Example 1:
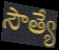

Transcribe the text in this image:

సౌత్యే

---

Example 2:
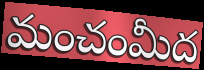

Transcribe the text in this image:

మంచంమీద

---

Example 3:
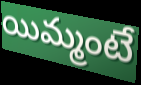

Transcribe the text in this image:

యిమ్మంటే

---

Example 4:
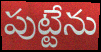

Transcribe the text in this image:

పుట్టేను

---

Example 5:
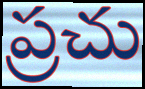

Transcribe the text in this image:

ప్రచు